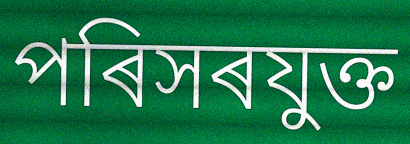
পৰিসৰযুক্ত